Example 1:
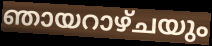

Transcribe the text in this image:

ഞായറാഴ്ചയും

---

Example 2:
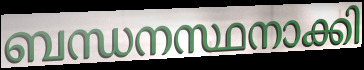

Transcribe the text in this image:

ബന്ധനസ്ഥനാക്കി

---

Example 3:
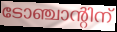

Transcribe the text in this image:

ടോഞ്ചാന്റിന്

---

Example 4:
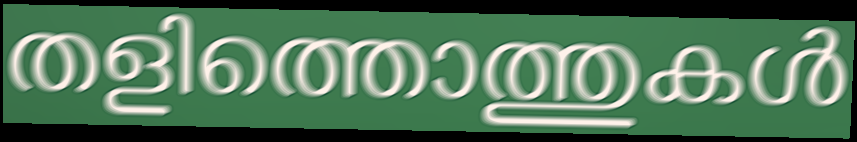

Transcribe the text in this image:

തളിത്തൊത്തുകൾ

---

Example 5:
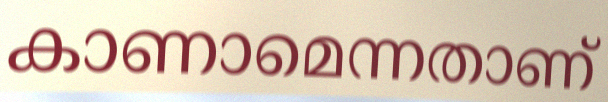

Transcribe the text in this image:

കാണാമെന്നതാണ്